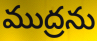
ముద్రను